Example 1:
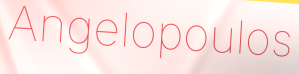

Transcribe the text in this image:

Angelopoulos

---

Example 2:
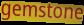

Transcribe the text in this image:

gemstone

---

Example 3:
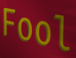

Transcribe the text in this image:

Fool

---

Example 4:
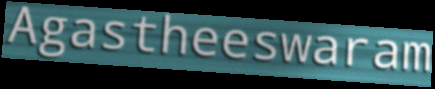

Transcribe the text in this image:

Agastheeswaram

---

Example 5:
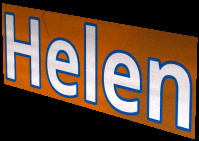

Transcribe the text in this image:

Helen